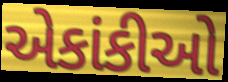
એકાંકીઓ